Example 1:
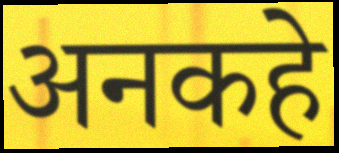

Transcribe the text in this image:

अनकहे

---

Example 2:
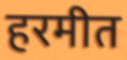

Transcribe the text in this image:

हरमीत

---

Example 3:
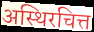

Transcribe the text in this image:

अस्थिरचित्त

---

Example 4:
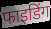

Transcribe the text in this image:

फाइडिंग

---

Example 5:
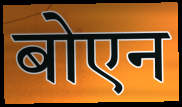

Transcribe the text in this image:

बोएन